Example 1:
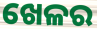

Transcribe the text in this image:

ଖେଳର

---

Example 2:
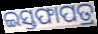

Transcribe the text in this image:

ଇସ୍ତଫାପତ୍ର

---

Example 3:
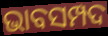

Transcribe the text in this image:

ଭାବସମ୍ପଦ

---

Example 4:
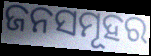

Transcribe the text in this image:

ଜନସମୂହର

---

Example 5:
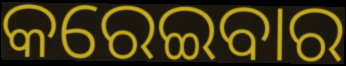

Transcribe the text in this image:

କରେଇବାର